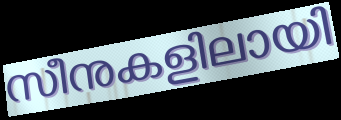
സീനുകളിലായി